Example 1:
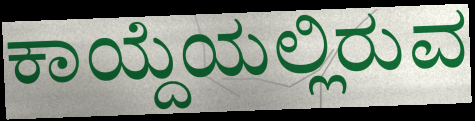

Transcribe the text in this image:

ಕಾಯ್ದೆಯಲ್ಲಿರುವ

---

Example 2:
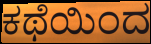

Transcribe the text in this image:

ಕಥೆಯಿಂದ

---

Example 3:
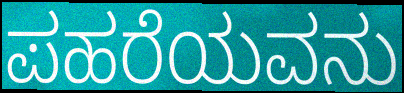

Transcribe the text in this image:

ಪಹರೆಯವನು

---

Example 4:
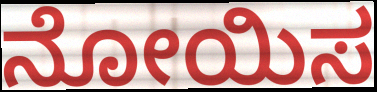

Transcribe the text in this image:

ನೋಯಿಸ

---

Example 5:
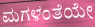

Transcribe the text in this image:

ಮಗಳಂತೆಯೇ